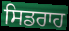
ਸਿਡਰਾਹ